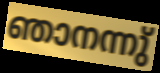
ഞാനന്നു്